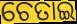
ଚେତାଇ